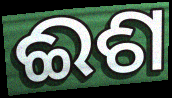
ଈଶ